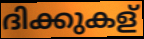
ദിക്കുകള്